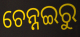
ଚେନ୍ନଇରୁ